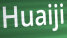
Huaiji